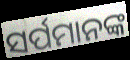
ସର୍ପମାନଙ୍କ